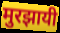
मुरझायी